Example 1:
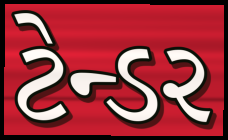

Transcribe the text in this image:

ટેન્ડર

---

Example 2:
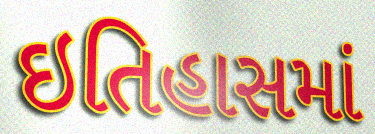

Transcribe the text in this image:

ઇતિહાસમાં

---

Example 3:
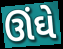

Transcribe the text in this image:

ઊંઘે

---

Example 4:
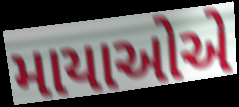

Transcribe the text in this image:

માયાઓએ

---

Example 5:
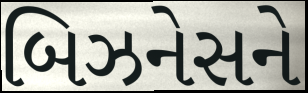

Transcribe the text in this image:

બિઝનેસને